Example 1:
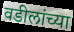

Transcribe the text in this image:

वडीलांच्या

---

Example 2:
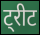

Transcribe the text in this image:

ट्रीट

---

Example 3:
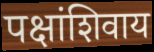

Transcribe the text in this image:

पक्षांशिवाय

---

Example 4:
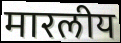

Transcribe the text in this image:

मारलीय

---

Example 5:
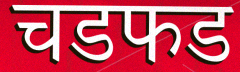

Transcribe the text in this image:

चडफड